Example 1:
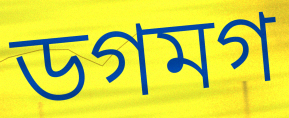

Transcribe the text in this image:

ডগমগ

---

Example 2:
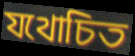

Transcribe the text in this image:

যথোচিত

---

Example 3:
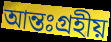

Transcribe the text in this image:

আন্তঃগ্রহীয়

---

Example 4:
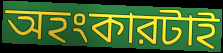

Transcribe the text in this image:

অহংকারটাই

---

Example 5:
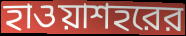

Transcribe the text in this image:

হাওয়াশহরের